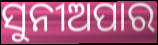
ସୁନୀଅପାର